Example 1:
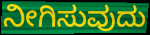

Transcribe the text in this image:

ನೀಗಿಸುವುದು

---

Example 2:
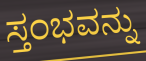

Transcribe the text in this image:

ಸ್ತಂಭವನ್ನು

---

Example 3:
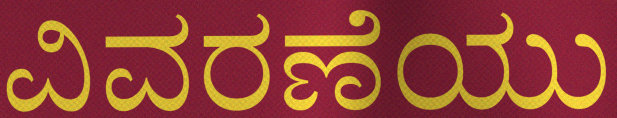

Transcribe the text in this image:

ವಿವರಣೆಯು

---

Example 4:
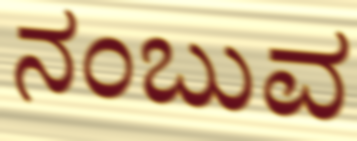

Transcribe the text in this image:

ನಂಬುವ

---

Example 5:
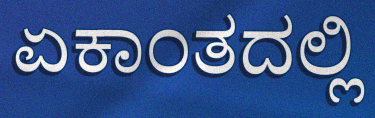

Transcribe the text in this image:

ಏಕಾಂತದಲ್ಲಿ